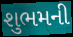
શુભમની